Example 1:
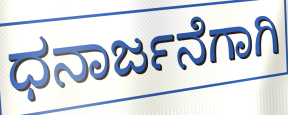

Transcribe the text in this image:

ಧನಾರ್ಜನೆಗಾಗಿ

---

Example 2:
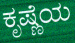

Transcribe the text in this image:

ಕೃಷ್ಣೆಯ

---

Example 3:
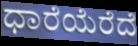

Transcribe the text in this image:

ಧಾರೆಯೆರೆದೆ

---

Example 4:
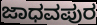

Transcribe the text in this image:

ಜಾಧವಪುರ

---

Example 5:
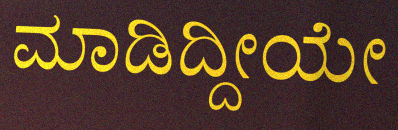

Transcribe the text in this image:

ಮಾಡಿದ್ದೀಯೇ